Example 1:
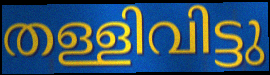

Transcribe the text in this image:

തള്ളിവിട്ടു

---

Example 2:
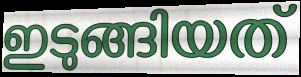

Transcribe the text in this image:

ഇടുങ്ങിയത്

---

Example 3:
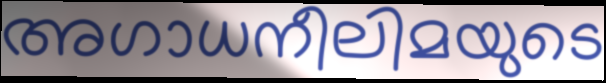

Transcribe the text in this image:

അഗാധനീലിമയുടെ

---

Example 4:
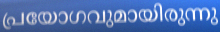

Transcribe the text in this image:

പ്രയോഗവുമായിരുന്നു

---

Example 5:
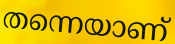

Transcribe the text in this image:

തന്നെയാണ്